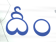
దీం